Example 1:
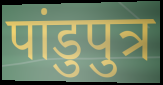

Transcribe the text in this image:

पांडुपुत्र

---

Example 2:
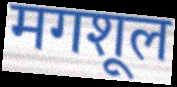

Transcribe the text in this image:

मगशूल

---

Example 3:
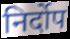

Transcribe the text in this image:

निर्दोप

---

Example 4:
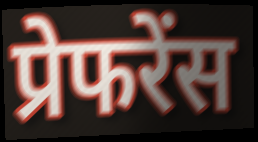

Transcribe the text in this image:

प्रेफरेंस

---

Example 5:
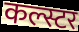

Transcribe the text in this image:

कल्स्टर